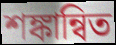
শঙ্কান্বিত